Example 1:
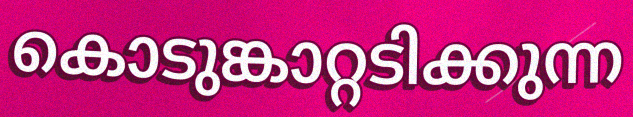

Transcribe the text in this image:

കൊടുങ്കാറ്റടിക്കുന്ന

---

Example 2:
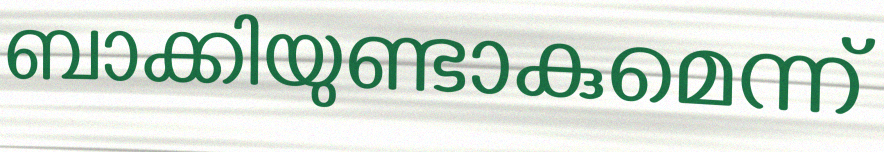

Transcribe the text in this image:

ബാക്കിയുണ്ടാകുമെന്ന്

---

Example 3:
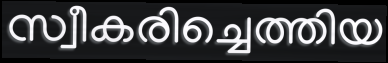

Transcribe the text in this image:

സ്വീകരിച്ചെത്തിയ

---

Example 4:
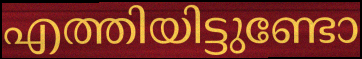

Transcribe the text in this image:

എത്തിയിട്ടുണ്ടോ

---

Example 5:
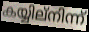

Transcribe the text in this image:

കയ്യില്നിന്ന്